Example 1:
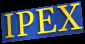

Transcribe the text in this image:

IPEX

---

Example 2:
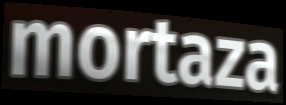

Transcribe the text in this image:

mortaza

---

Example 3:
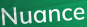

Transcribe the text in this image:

Nuance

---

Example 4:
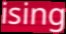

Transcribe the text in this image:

ising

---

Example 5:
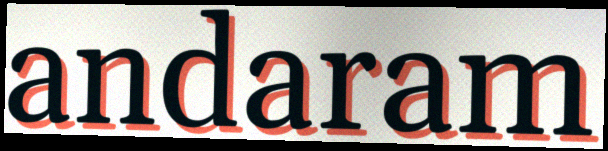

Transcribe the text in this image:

andaram